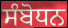
ਸੰਬੋਧਨ